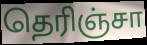
தெரிஞ்சா